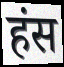
हंस